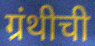
ग्रंथीची